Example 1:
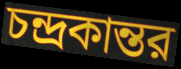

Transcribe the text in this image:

চন্দ্রকান্তর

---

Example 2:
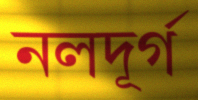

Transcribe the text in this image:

নলদূর্গ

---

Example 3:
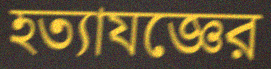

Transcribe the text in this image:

হত্যাযজ্ঞের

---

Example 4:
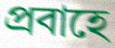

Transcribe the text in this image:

প্রবাহে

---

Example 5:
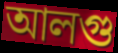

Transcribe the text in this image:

আলগু